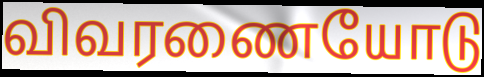
விவரணையோடு